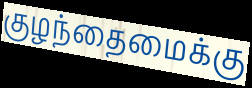
குழந்தைமைக்கு